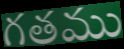
గతము